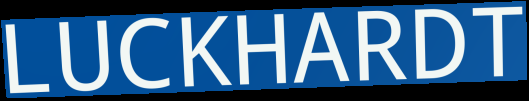
LUCKHARDT